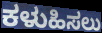
ಕಳುಹಿಸಲು